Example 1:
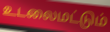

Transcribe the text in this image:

உடலைமட்டும்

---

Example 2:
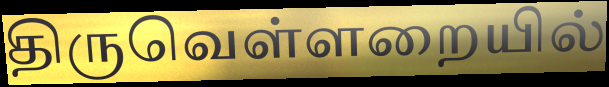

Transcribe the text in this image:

திருவெள்ளறையில்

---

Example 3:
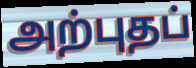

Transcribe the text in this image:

அற்புதப்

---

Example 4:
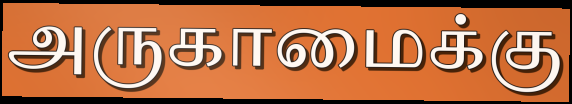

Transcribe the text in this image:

அருகாமைக்கு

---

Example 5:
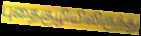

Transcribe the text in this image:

புதைகுழியிலிருந்து